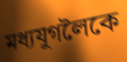
মধ্যযুগলৈকে